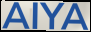
AIYA